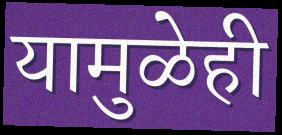
यामुळेही